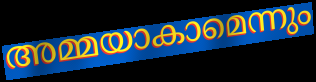
അമ്മയാകാമെന്നും